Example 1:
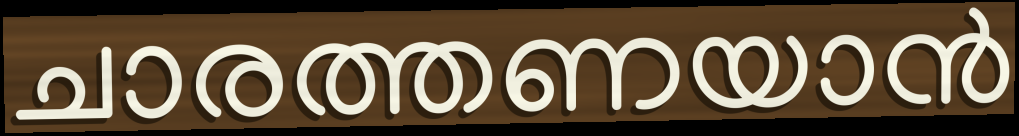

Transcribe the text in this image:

ചാരത്തണയാൻ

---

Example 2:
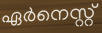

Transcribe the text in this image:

ഏർനെസ്റ്റ്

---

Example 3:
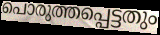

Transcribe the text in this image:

പൊരുത്തപ്പെട്ടതും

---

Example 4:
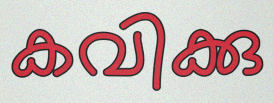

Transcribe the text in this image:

കവിക്കു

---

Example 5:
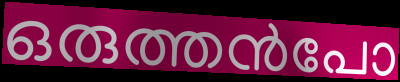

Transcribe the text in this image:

ഒരുത്തൻപോ